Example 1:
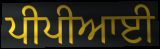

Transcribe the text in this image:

ਪੀਪੀਆਈ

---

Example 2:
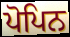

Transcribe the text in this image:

ਪੋਪਿਨ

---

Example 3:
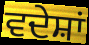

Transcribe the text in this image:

ਵਦੇਸ਼ਾਂ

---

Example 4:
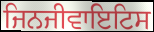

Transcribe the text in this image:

ਜਿਨਜੀਵਾਇਟਿਸ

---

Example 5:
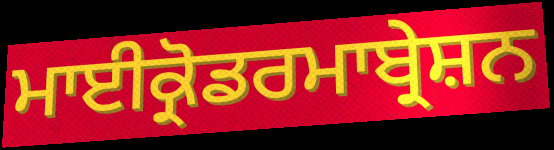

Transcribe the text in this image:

ਮਾਈਕ੍ਰੋਡਰਮਾਬ੍ਰੇਸ਼ਨ